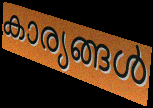
കാര്യങ്ങൾ